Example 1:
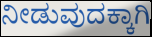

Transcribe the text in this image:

ನೀಡುವುದಕ್ಕಾಗಿ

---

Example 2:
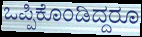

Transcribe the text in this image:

ಒಪ್ಪಿಕೊಂಡಿದ್ದರೂ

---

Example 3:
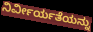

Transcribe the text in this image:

ನಿರ್ವೀರ್ಯತೆಯನ್ನು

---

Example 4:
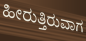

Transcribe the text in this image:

ಹೀರುತ್ತಿರುವಾಗ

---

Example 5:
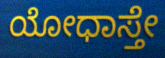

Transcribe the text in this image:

ಯೋಧಾಸ್ತೇ